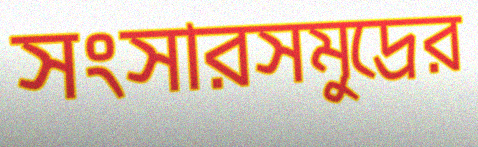
সংসারসমুদ্রের